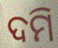
ଦମି